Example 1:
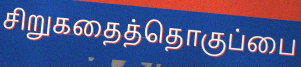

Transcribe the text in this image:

சிறுகதைத்தொகுப்பை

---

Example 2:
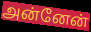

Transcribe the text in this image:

அன்னேன்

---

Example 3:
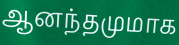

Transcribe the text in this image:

ஆனந்தமுமாக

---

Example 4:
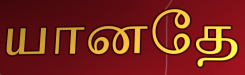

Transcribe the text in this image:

யானதே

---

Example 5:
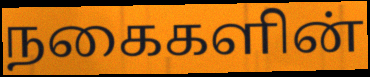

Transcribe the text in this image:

நகைகளின்